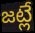
జట్లే